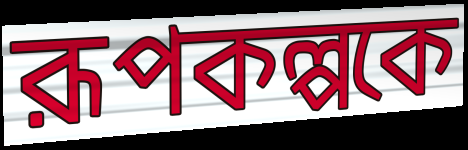
রূপকল্পকে